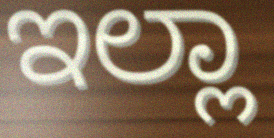
ಇಲ್ಲಾ